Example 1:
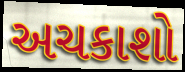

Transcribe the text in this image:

અચકાશો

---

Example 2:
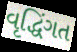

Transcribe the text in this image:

વૃદ્ધિંગત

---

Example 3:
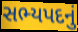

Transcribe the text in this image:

સભ્યપદનું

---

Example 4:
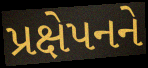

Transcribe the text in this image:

પ્રક્ષેપનને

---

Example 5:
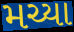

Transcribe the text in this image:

મચ્યા